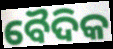
ବୈଦିକ